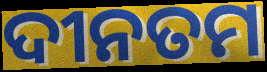
ଦୀନତମ